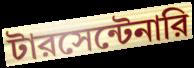
টারসেন্টেনারি